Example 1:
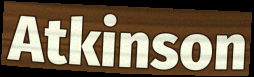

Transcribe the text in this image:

Atkinson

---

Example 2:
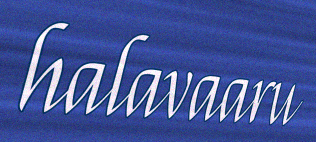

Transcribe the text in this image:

halavaaru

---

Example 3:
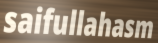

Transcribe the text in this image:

saifullahasm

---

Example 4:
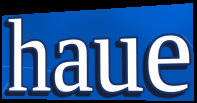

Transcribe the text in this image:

haue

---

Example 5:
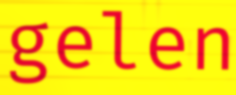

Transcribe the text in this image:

gelen